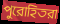
পুরোহিতরা